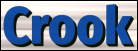
Crook